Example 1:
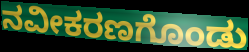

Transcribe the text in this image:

ನವೀಕರಣಗೊಂಡು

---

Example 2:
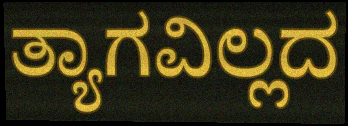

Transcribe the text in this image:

ತ್ಯಾಗವಿಲ್ಲದ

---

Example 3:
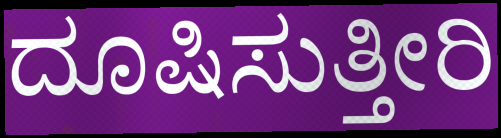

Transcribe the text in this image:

ದೂಷಿಸುತ್ತೀರಿ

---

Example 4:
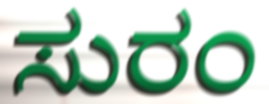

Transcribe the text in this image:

ಸುರಂ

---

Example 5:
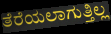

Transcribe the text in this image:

ತೆರೆಯಲಾಗುತ್ತಿಲ್ಲ